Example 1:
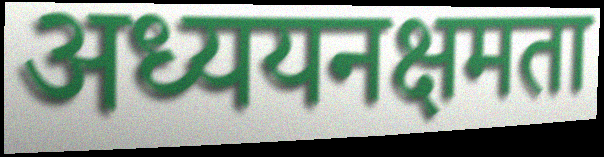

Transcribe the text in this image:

अध्ययनक्षमता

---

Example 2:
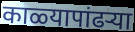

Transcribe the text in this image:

काळ्यापांढर्‍या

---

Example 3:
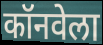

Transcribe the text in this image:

कॉनवेला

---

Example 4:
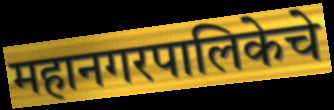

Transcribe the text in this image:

महानगरपालिकेचे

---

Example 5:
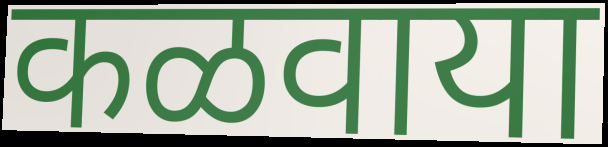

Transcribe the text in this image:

कळवाया